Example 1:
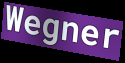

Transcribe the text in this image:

Wegner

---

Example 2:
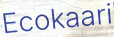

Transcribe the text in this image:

Ecokaari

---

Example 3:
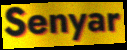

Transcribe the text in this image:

Senyar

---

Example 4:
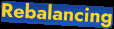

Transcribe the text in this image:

Rebalancing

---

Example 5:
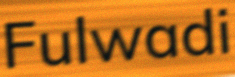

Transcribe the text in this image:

Fulwadi